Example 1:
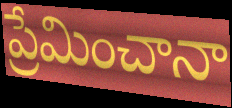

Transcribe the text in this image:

ప్రేమించానా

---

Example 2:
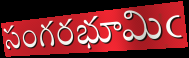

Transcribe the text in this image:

సంగరభూమిఁ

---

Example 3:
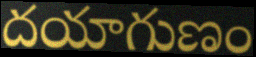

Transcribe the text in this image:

దయాగుణం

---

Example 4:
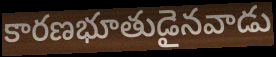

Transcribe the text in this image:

కారణభూతుడైనవాడు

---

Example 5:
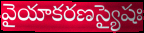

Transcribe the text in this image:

వైయాకరణస్యైషః